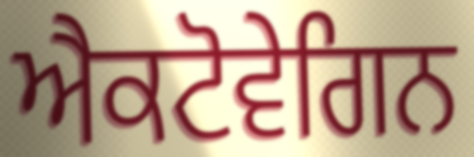
ਐਕਟੋਵੇਗਿਨ